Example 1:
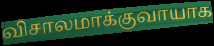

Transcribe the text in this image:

விசாலமாக்குவாயாக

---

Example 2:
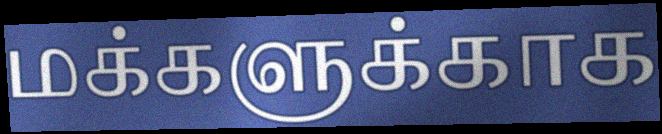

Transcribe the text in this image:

மக்களுக்காக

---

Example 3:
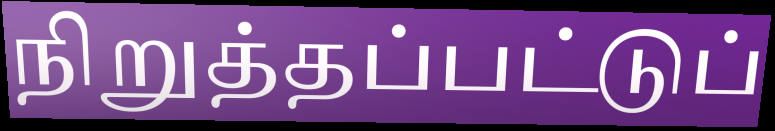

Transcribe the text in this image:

நிறுத்தப்பட்டுப்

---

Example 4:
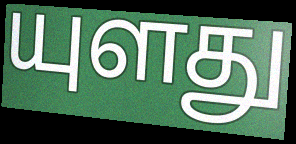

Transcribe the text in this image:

யுளது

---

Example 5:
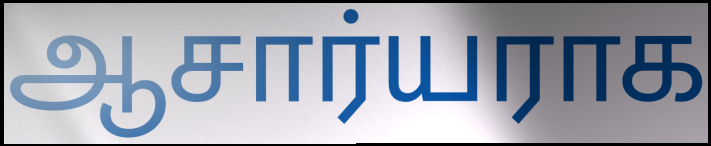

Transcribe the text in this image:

ஆசார்யராக